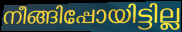
നീങ്ങിപ്പോയിട്ടില്ല